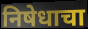
निषेधाचा